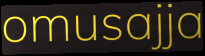
omusajja